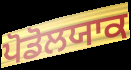
ਪੋਡੋਲਯਾਕ